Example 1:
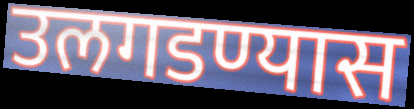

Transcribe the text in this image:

उलगडण्यास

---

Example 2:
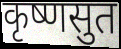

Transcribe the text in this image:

कृष्णसुत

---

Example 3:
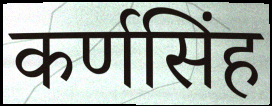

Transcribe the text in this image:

कर्णसिंह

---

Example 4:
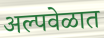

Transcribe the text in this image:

अल्पवेळात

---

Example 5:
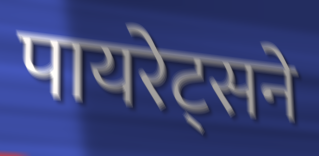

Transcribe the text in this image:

पायरेट्सने